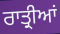
ਰਾਤ੍ਰੀਆਂ